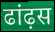
ढांढ़स